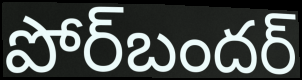
పోర్‌బందర్